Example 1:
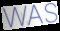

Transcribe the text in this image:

WAS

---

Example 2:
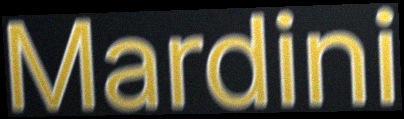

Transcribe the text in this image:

Mardini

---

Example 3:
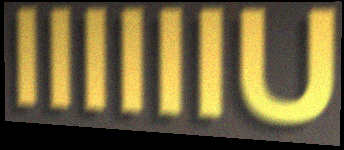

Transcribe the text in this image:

IIIIIIU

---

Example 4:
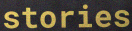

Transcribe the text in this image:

stories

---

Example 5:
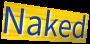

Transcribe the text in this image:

Naked